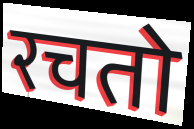
रचतो